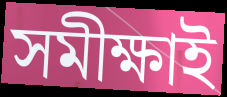
সমীক্ষাই